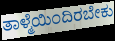
ತಾಳ್ಮೆಯಿಂದಿರಬೇಕು